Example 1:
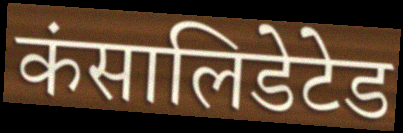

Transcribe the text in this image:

कंसालिडेटेड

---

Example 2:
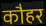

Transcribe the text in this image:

कौहर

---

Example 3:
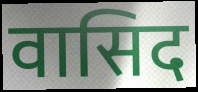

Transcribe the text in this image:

वासिद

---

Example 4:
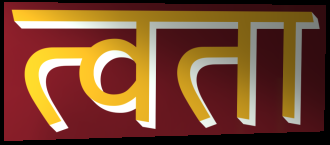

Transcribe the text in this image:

त्वता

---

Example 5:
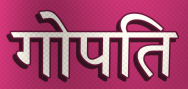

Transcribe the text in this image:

गोपति